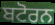
ਬਟੋਰਨ